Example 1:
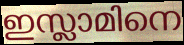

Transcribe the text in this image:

ഇസ്ലാമിനെ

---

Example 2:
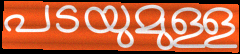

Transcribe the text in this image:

പടയുമുള്ള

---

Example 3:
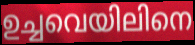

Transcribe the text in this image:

ഉച്ചവെയിലിനെ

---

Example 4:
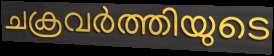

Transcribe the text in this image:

ചക്രവർത്തിയുടെ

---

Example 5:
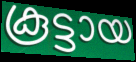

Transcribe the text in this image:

കൂട്ടായ